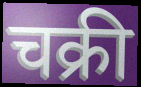
चक्री